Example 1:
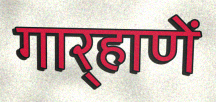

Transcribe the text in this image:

गार्‍हाणें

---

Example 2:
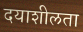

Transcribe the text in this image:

दयाशीलता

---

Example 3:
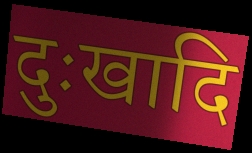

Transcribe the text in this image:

दुःखादि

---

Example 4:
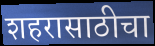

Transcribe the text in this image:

शहरासाठीचा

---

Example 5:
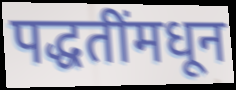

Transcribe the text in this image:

पद्धतींमधून